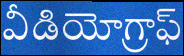
వీడియోగ్రాఫ్